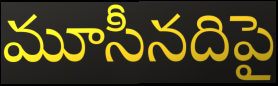
మూసీనదిపై